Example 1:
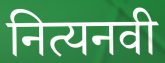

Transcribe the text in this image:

नित्यनवी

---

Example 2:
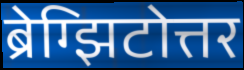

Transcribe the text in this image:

ब्रेग्झिटोत्तर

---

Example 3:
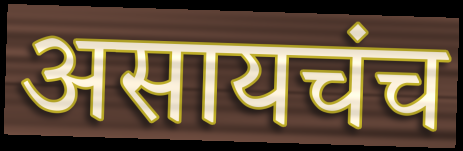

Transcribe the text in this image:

असायचंच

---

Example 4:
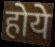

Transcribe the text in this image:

होये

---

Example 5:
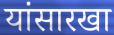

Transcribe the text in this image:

यांसारखा